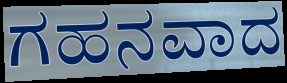
ಗಹನವಾದ